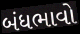
બંધભાવો